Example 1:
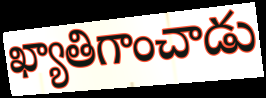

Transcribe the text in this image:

ఖ్యాతిగాంచాడు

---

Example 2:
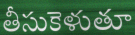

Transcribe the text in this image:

తీసుకెళుతూ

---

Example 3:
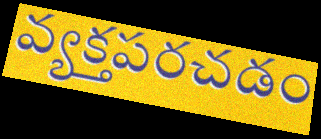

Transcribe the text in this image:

వ్యక్తపరచడం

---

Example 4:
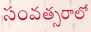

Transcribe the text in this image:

సంవత్సరాలో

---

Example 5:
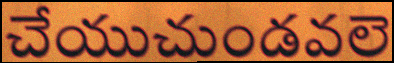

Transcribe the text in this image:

చేయుచుండవలె